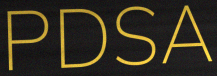
PDSA